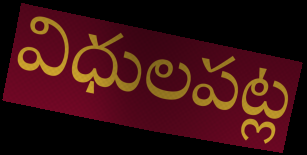
విధులపట్ల